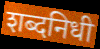
शब्दनिधी